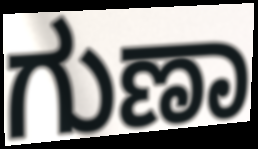
ಗುಣಾ